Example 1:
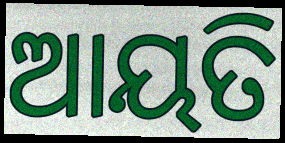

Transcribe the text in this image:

ଆୟତି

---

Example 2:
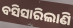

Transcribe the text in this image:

ବସିସାରିଲାଣି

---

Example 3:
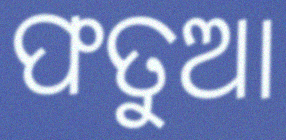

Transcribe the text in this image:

ଫତୁଆ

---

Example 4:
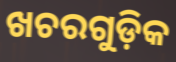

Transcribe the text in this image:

ଖଚରଗୁଡ଼ିକ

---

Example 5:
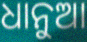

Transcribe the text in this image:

ଧାନୁଆ